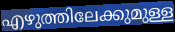
എഴുത്തിലേക്കുമുള്ള